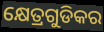
କ୍ଷେତ୍ରଗୁଡିକର